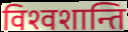
विश्वशान्ति